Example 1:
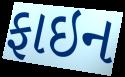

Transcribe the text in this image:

ફાઇન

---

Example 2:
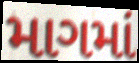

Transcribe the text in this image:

માગમાં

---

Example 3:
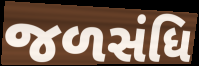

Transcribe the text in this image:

જળસંધિ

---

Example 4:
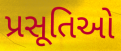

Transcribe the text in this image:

પ્રસૂતિઓ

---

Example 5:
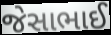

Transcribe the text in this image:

જેસાભાઈ